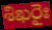
శిఖరైః